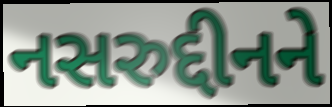
નસરુદ્દીનને